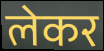
लेकर